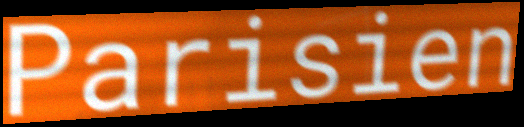
Parisien